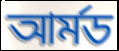
আৰ্মড